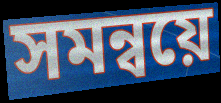
সমন্বয়ে